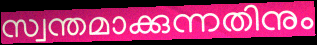
സ്വന്തമാക്കുന്നതിനും